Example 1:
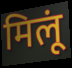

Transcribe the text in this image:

मिलूं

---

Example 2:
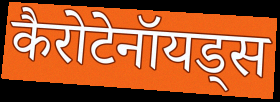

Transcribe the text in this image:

कैरोटेनॉयड्स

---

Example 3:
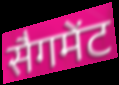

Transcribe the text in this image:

सैगमेंट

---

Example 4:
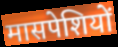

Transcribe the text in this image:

मासपेशियों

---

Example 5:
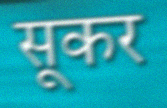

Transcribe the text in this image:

सूकर